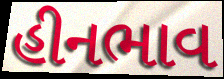
હીનભાવ